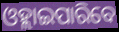
ଓହ୍ଲାଇପାରିବେ